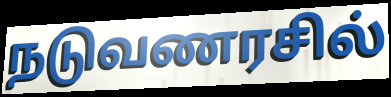
நடுவணரசில்